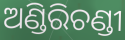
ଅଣ୍ଡିରିଚଣ୍ଡୀ